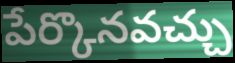
పేర్కొనవచ్చు